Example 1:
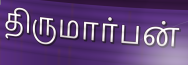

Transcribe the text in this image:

திருமார்பன்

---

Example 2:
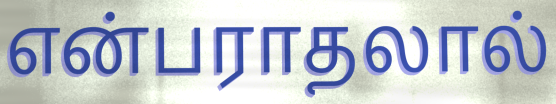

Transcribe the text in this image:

என்பராதலால்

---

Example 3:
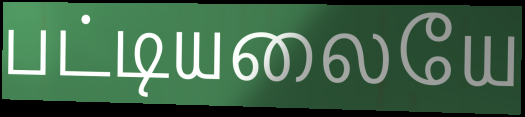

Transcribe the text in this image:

பட்டியலையே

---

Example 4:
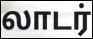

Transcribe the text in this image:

லாடர்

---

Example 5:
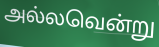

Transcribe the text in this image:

அல்லவென்று